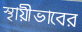
স্থায়ীভাবের